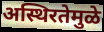
अस्थिरतेमुळे